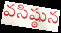
వసిష్ఠున